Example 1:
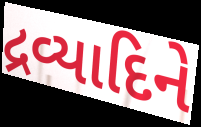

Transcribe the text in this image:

દ્રવ્યાદિને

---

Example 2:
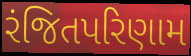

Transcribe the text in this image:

રંજિતપરિણામ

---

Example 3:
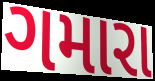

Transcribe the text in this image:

ગમારા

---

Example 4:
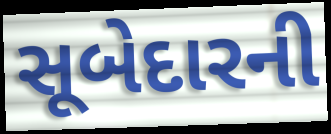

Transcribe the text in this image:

સૂબેદારની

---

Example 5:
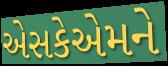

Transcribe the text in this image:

એસકેએમને